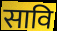
सावि